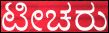
ಟೀಚರು